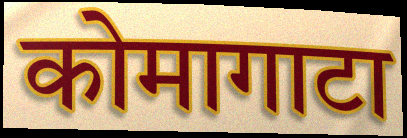
कोमागाटा